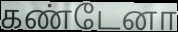
கண்டேனா